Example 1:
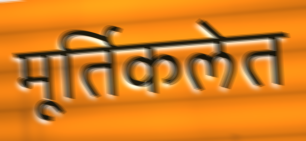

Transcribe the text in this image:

मूर्तिकलेत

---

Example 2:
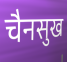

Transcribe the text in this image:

चैनसुख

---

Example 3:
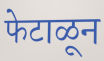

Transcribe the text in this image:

फेटाळून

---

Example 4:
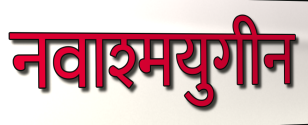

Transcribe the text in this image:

नवाश्मयुगीन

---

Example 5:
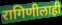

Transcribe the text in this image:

रागिणीलाही